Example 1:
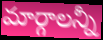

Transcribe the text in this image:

మార్గాలన్నీ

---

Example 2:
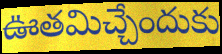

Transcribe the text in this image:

ఊతమిచ్చేందుకు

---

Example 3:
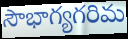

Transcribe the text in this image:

సౌభాగ్యగరిమ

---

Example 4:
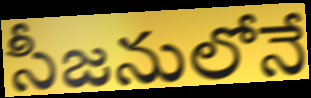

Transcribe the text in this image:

సీజనులోనే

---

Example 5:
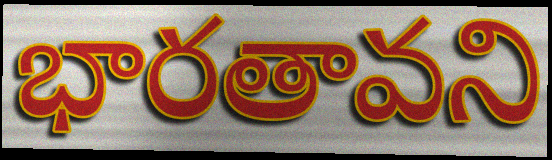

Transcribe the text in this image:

భారతావని